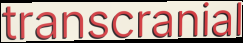
transcranial